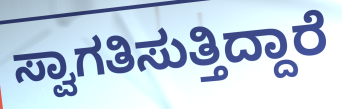
ಸ್ವಾಗತಿಸುತ್ತಿದ್ದಾರೆ